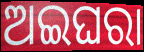
ଅଇଘରା